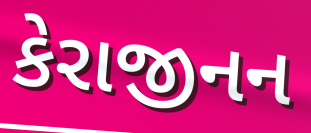
કેરાજીનન